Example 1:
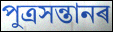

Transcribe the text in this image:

পুত্ৰসন্তানৰ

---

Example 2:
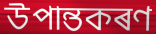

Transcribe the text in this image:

উপান্তকৰণ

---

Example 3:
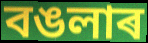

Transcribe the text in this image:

বঙলাৰ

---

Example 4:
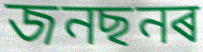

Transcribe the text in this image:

জনছনৰ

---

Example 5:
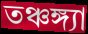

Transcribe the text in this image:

তঞ্চঙ্গ্যা